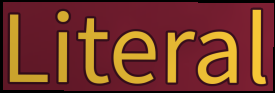
Literal